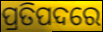
ପ୍ରତିପଦରେ